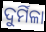
ଦୁର୍ମିଳା